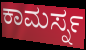
ಕಾಮರ್ಸ್ನ